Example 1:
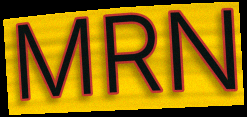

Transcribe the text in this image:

MRN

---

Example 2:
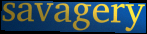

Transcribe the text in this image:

savagery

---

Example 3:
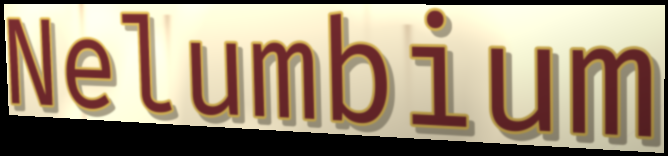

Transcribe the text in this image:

Nelumbium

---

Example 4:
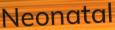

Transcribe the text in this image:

Neonatal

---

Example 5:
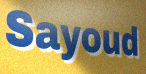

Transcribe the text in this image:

Sayoud